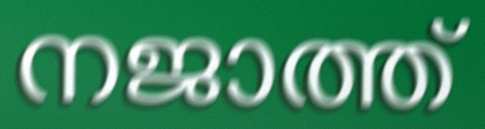
നജാത്ത്